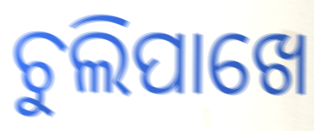
ଚୁଲିପାଖେ